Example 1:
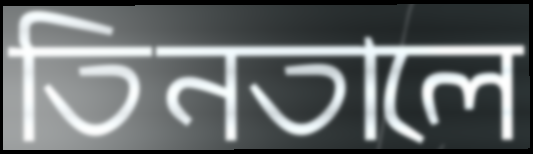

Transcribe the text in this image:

তিনতালে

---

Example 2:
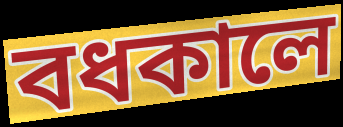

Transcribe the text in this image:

বধকালে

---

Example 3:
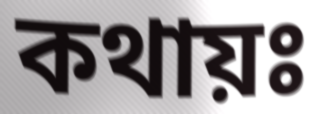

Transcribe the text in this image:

কথায়ঃ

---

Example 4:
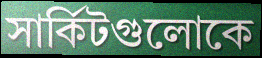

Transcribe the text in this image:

সার্কিটগুলোকে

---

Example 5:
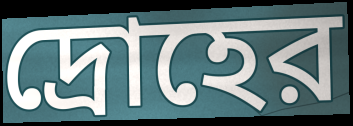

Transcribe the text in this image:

দ্রোহের